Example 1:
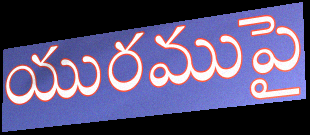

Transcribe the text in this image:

యురముపై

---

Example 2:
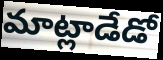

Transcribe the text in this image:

మాట్లాడేడో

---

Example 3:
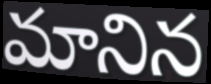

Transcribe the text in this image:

మానిన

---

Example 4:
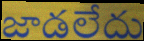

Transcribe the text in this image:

జాడలేదు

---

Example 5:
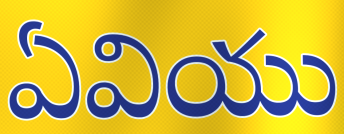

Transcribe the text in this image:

ఏవియు